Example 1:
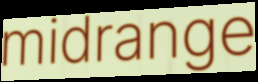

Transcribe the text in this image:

midrange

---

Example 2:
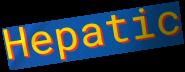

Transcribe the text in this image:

Hepatic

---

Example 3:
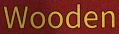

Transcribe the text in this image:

Wooden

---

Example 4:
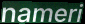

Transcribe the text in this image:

nameri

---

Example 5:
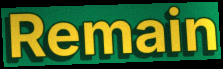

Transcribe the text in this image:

Remain